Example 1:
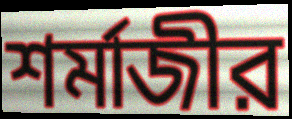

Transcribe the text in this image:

শর্মাজীর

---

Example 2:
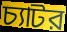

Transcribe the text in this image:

চ্যাটর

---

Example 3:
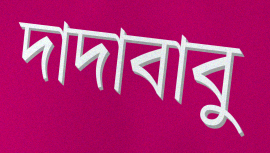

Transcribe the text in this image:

দাদাবাবু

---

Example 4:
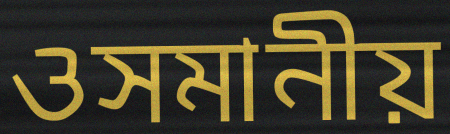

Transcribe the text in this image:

ওসমানীয়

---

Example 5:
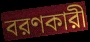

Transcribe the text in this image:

বরণকারী